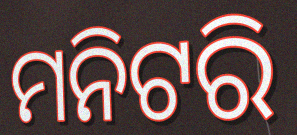
ମନିଟରି